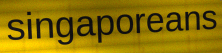
singaporeans